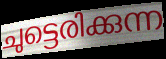
ചുട്ടെരിക്കുന്ന